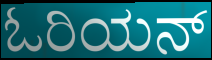
ಓರಿಯನ್